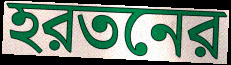
হরতনের